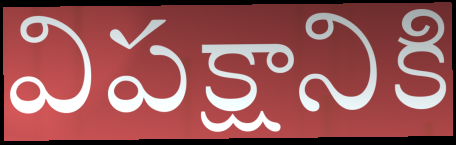
విపక్షానికి